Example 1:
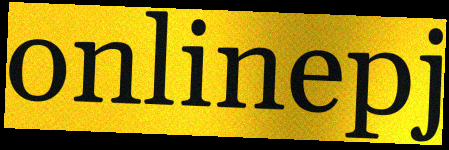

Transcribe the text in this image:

onlinepj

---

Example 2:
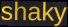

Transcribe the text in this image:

shaky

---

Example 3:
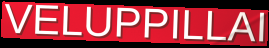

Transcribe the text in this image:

VELUPPILLAI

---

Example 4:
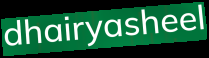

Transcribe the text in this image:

dhairyasheel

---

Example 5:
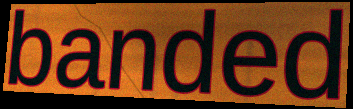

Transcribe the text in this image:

banded